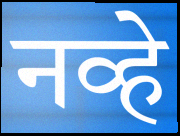
नव्हे